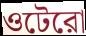
ওটেরো